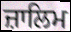
ਜ਼ਾਲਿਮ